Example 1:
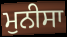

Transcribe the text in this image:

ਮੁਨੀਸਾ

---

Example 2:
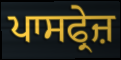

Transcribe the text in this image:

ਪਾਸਫ੍ਰੇਜ਼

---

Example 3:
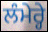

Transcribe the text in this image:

ਲੰਮੇਰ੍ਹੇ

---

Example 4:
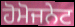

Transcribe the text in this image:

ਹੋਮੋਜਨੇਟ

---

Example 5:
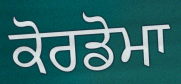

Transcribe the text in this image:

ਕੋਰਡੋਮਾ